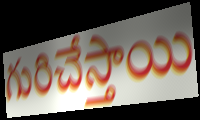
గురిచేస్తాయి